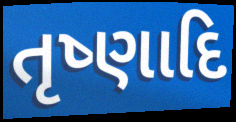
તૃષ્ણાદિ